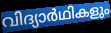
വിദ്യാർഥികളും